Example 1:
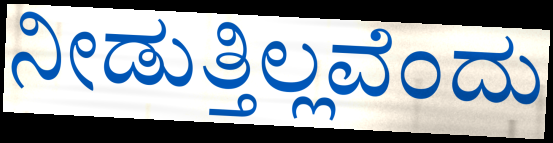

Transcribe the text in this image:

ನೀಡುತ್ತಿಲ್ಲವೆಂದು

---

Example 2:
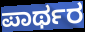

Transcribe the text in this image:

ಪಾರ್ಥರ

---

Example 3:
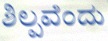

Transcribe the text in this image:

ಶಿಲ್ಪವೆಂದು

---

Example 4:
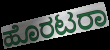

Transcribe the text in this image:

ಹೊರಟರಾ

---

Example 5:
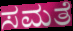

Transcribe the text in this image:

ಸಮತೆ